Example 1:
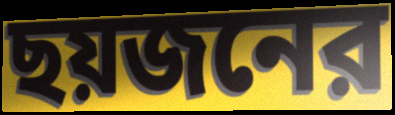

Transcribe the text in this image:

ছয়জনের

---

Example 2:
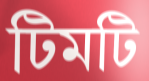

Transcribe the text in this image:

টিমটি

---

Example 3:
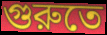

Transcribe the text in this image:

গুরুতে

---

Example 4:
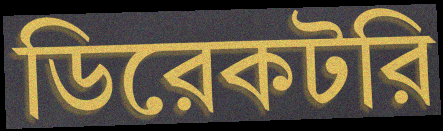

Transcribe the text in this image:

ডিরেকটরি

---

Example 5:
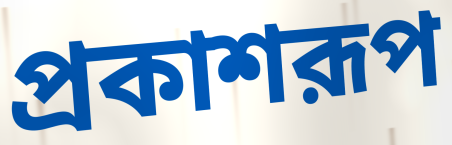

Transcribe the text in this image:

প্রকাশরূপ